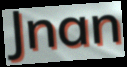
Jnan